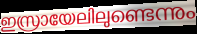
ഇസ്രായേലിലുണ്ടെന്നും